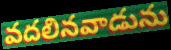
వదలినవాడును